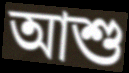
আশু